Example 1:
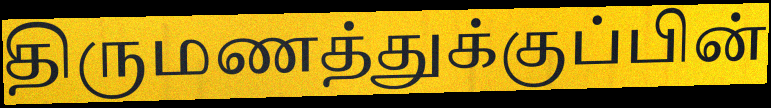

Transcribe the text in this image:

திருமணத்துக்குப்பின்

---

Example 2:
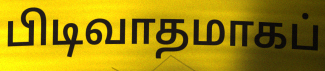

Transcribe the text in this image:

பிடிவாதமாகப்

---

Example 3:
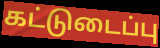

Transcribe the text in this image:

கட்டுடைப்பு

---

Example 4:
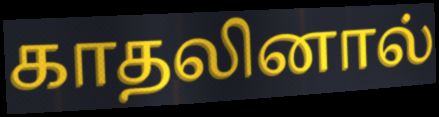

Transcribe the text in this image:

காதலினால்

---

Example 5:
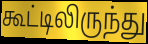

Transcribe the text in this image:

கூட்டிலிருந்து